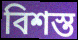
বিশস্ত